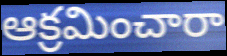
ఆక్రమించారా